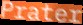
Prater